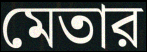
মেতার